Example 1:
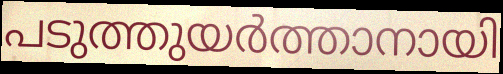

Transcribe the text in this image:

പടുത്തുയർത്താനായി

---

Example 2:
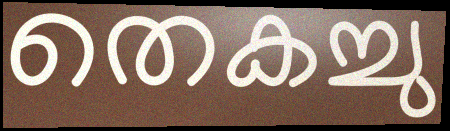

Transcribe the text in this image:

തെകച്ചു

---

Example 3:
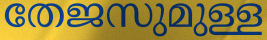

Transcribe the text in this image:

തേജസുമുള്ള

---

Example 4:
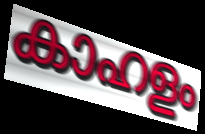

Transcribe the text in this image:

കാഹളം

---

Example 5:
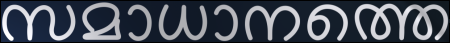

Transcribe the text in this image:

സമാധാനത്തെ